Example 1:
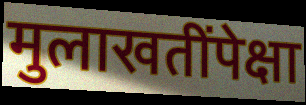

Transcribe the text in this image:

मुलाखतींपेक्षा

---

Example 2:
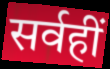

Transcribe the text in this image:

सर्वहीं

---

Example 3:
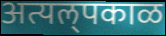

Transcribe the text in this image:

अत्यल्पकाळ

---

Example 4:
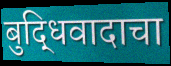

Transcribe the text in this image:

बुद्धिवादाचा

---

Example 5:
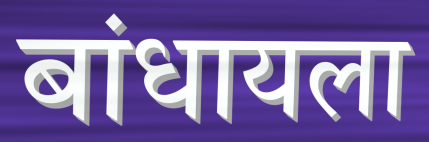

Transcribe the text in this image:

बांधायला